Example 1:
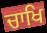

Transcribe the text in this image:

ਚਾਖਿ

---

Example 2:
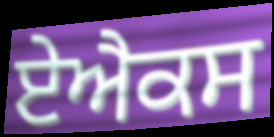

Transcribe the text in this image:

ਏਐਕਸ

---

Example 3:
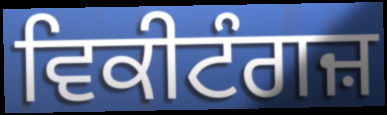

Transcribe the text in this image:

ਵਿਕੀਟੰਗਜ਼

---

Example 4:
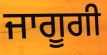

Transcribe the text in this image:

ਜਾਗੂਗੀ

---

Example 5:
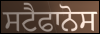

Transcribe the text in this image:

ਸਟੈਫਾਨੋਸ